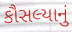
કૌસલ્યાનું